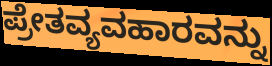
ಪ್ರೇತವ್ಯವಹಾರವನ್ನು